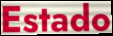
Estado